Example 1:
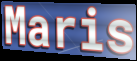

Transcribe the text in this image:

Maris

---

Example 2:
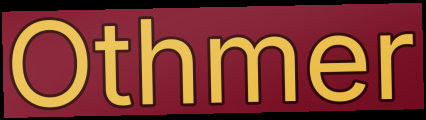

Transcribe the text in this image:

Othmer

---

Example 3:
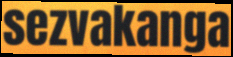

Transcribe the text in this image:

sezvakanga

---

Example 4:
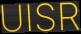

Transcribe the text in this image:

UISR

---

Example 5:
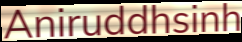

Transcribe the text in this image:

Aniruddhsinh